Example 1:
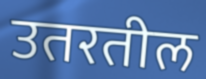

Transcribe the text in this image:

उतरतील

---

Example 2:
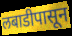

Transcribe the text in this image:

लबाडीपासून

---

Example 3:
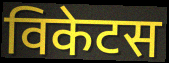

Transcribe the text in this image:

विकेटस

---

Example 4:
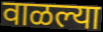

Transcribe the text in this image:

वाळल्या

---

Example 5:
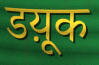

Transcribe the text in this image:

डय़ूक